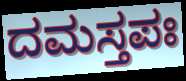
ದಮಸ್ತಪಃ